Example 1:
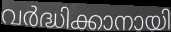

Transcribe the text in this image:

വർദ്ധിക്കാനായി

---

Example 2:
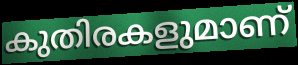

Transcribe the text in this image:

കുതിരകളുമാണ്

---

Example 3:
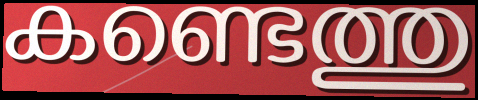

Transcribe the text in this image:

കണ്ടെത്തു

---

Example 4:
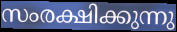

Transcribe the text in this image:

സംരക്ഷിക്കുന്നു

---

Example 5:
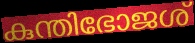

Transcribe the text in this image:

കുന്തിഭോജശ്